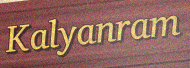
Kalyanram